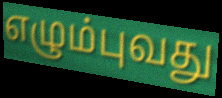
எழும்புவது